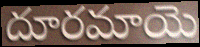
దూరమాయె